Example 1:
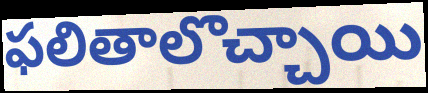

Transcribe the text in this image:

ఫలితాలొచ్చాయి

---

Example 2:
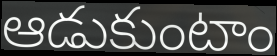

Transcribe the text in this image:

ఆడుకుంటాం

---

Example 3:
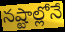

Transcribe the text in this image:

నష్టాల్లోనే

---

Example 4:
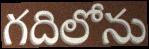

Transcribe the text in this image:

గదిలోను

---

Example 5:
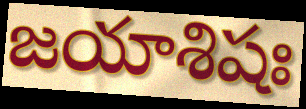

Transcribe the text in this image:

జయాశిషః